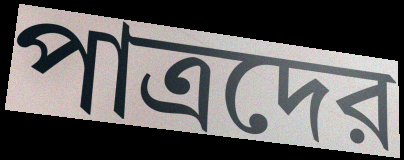
পাত্রদের